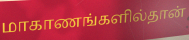
மாகாணங்களில்தான்